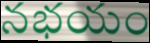
నభయం